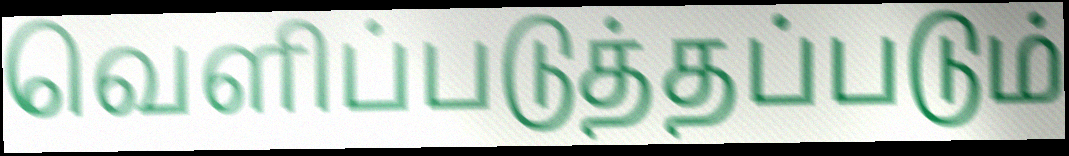
வெளிப்படுத்தப்படும்